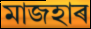
মাজহাৰ